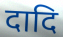
दादि